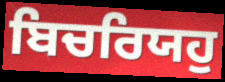
ਬਿਚਰਿਯਹੁ